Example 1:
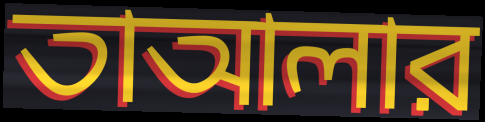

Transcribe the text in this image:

তাআলার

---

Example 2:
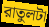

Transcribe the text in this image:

রাতুলটা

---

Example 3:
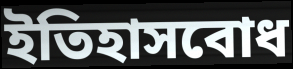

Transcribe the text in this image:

ইতিহাসবোধ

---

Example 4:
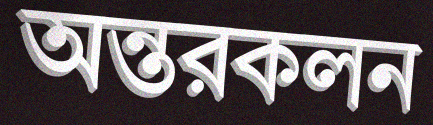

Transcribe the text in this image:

অন্তরকলন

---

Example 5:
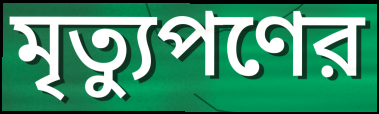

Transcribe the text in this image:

মৃত্যুপণের